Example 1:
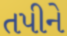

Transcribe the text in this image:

તપીને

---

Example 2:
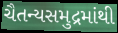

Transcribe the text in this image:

ચૈતન્યસમુદ્રમાંથી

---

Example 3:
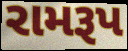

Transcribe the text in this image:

રામરૂપ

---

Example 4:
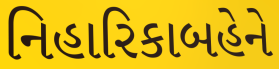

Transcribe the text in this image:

નિહારિકાબહેને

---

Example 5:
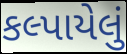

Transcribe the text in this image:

કલ્પાયેલું